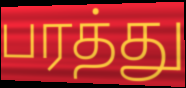
பரத்து